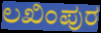
ಲಖಿಂಪುರ